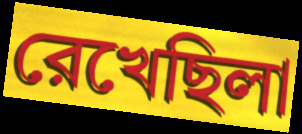
রেখেছিলা